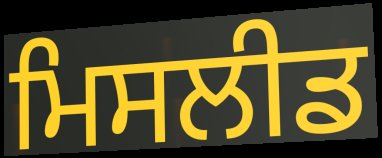
ਮਿਸਲੀਡ